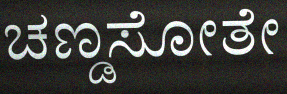
ಚಣ್ಡಸೋತೇ